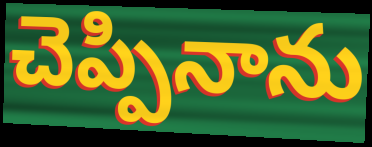
చెప్పినాను